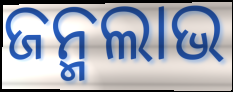
ଜନ୍ମଲାଭ